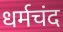
धर्मचंद